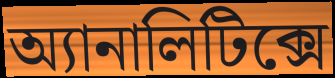
অ্যানালিটিক্সে